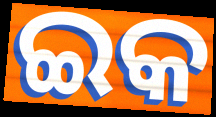
ଇକ